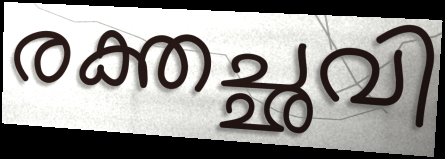
രക്തച്ഛവി